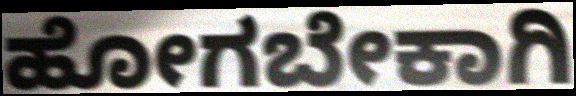
ಹೋಗಬೇಕಾಗಿ